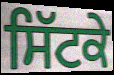
ਸਿੱਟਕੇ